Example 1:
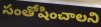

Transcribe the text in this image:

సంతోషించాలని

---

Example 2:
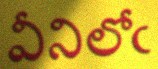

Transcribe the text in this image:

వీనిలోఁ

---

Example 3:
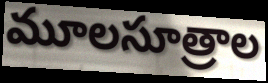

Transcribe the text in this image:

మూలసూత్రాల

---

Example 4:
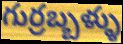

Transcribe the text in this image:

గుర్రబ్బళ్ళు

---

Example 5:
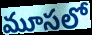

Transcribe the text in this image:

మూసలో